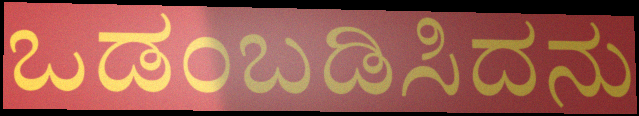
ಒಡಂಬಡಿಸಿದನು